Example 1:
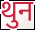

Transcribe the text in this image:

थुन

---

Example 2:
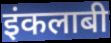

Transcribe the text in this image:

इंकलाबी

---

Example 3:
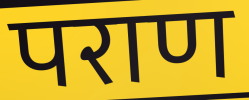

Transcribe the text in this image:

पराण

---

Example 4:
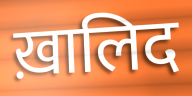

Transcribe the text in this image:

ख़ालिद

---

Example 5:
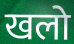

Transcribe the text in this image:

खलो